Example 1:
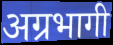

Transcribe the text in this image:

अग्रभागी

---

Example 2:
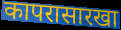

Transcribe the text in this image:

कापरासारखा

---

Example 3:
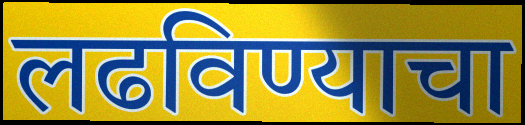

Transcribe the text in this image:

लढविण्याचा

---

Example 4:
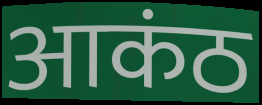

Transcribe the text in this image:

आकंठ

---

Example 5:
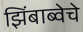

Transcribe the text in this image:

झिंबाब्वेचे